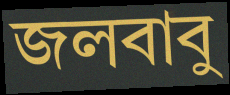
জলবাবু